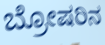
ಬ್ರೋಷರಿನ